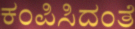
ಕಂಪಿಸಿದಂತೆ